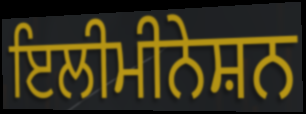
ਇਲੀਮੀਨੇਸ਼ਨ